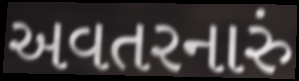
અવતરનારું